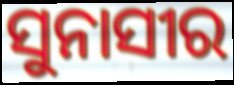
ସୁନାସୀର